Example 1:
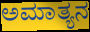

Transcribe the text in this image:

ಅಮಾತ್ಯನ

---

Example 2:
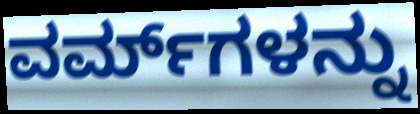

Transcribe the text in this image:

ವರ್ಮ್‌ಗಳನ್ನು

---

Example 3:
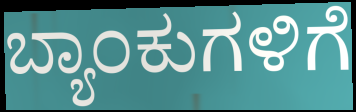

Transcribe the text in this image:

ಬ್ಯಾಂಕುಗಳಿಗೆ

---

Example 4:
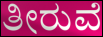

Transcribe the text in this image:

ತೀರುವೆ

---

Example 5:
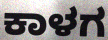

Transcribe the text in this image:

ಕಾಳಗ